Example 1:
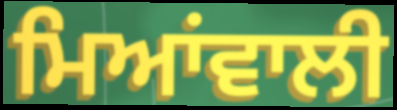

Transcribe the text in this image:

ਮਿਆਂਵਾਲੀ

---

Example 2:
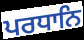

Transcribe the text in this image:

ਪਰਧਾਨਿ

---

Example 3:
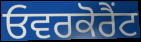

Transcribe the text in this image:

ਓਵਰਕੋਰੈਂਟ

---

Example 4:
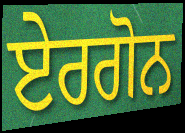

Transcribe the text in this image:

ਏਰਗੋਨ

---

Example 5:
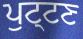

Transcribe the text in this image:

ਪੁਟ੍ਟਣ